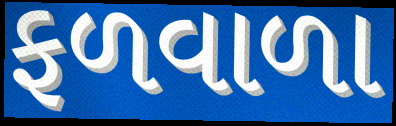
ફળવાળા